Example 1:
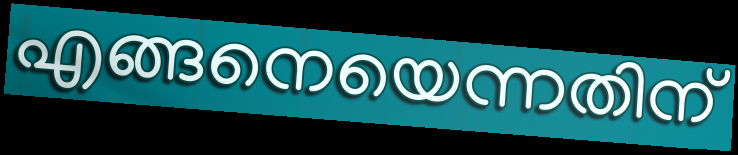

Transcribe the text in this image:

എങ്ങനെയെന്നതിന്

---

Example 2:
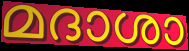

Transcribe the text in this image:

മദാശാ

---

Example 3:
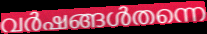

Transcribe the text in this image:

വർഷങ്ങൾതന്നെ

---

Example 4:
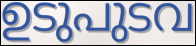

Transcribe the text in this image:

ഉടുപുടവ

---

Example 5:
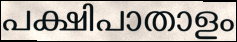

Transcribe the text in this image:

പക്ഷിപാതാളം